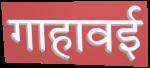
गाहावई